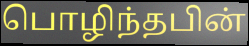
பொழிந்தபின்